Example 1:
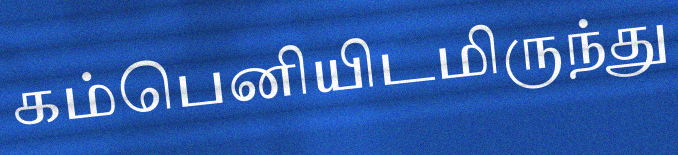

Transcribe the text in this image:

கம்பெனியிடமிருந்து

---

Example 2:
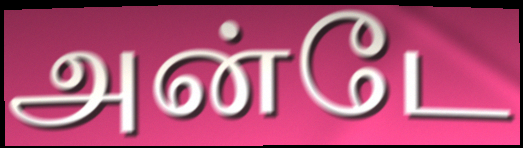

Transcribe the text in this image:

அன்டே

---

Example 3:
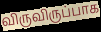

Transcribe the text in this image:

விருவிருப்பாக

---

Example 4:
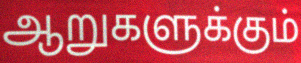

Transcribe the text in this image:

ஆறுகளுக்கும்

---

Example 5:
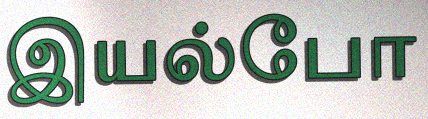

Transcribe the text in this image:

இயல்போ